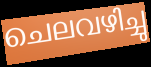
ചെലവഴിച്ചു